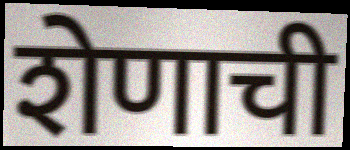
शेणाची